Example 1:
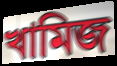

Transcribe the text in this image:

খামিজ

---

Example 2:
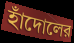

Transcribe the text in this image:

হাঁদোলের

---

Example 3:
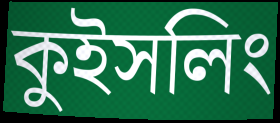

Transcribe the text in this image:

কুইসলিং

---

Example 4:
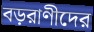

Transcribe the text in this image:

বড়রাণীদের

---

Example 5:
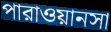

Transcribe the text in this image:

পারাওয়ানসা